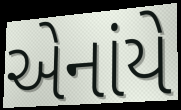
એનાંયે